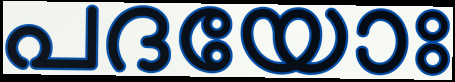
പദയോഃ